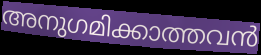
അനുഗമിക്കാത്തവൻ